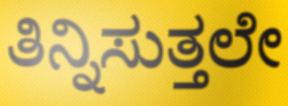
ತಿನ್ನಿಸುತ್ತಲೇ